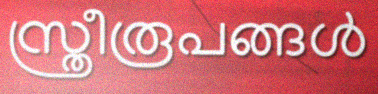
സ്ത്രീരൂപങ്ങൾ